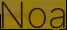
Noa